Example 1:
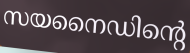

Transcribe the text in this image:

സയനൈഡിന്റെ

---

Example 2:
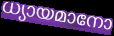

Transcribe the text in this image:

ധ്യായമാനോ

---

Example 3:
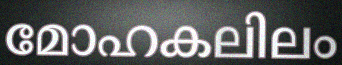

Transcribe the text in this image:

മോഹകലിലം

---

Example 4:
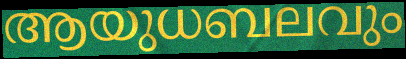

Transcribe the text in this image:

ആയുധബലവും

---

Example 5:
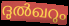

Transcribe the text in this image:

ദുൽഖറും